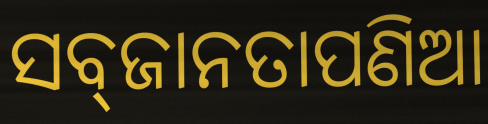
ସବ୍‌ଜାନତାପଣିଆ